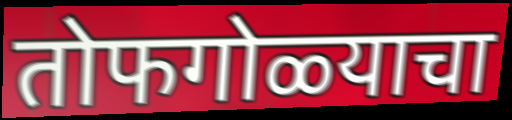
तोफगोळ्याचा